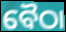
ବୈଠା